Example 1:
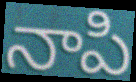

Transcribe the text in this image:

నాపి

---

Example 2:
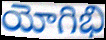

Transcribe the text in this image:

యోగిభి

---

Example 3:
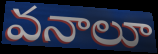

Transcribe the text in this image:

వనాలూ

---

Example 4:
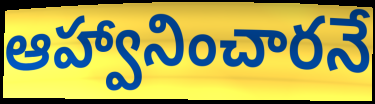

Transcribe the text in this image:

ఆహ్వానించారనే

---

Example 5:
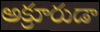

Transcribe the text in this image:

అక్రూరుడా